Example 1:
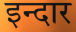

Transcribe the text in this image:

इन्दार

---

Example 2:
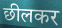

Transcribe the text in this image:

छीलकर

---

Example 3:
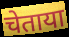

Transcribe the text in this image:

चेताया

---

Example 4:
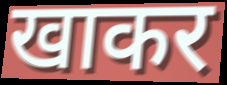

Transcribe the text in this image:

खाकर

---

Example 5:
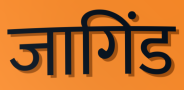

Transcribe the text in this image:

जागिंड